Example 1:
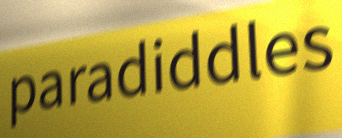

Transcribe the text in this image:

paradiddles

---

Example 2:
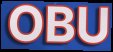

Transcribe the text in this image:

OBU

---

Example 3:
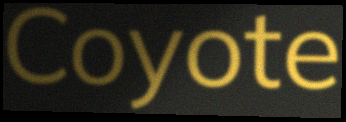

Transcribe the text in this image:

Coyote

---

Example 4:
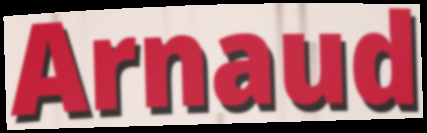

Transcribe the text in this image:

Arnaud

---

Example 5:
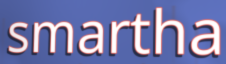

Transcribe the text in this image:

smartha